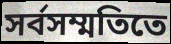
সর্বসম্মতিতে